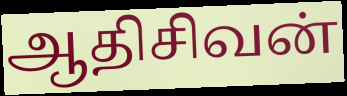
ஆதிசிவன்